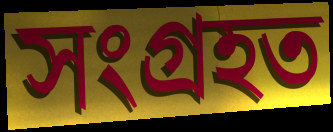
সংগ্ৰহত